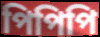
পিপিপি